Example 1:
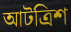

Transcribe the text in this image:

আটত্রিশ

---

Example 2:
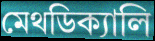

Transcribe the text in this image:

মেথডিক্যালি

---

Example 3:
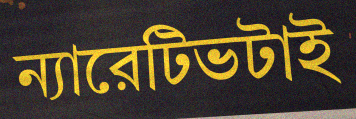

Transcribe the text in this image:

ন্যারেটিভটাই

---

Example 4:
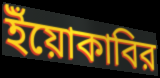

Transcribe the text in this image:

ইঁয়োকাবির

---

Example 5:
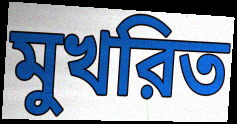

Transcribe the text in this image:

মুখরিত